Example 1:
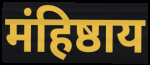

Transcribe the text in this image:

मंहिष्ठाय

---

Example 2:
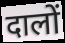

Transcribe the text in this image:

दालों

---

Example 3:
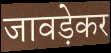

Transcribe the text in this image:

जावड़ेकर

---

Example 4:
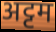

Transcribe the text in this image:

अट्टम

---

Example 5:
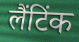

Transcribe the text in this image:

लैंटिंक